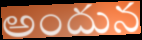
అందున